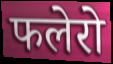
फलेरो